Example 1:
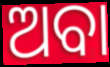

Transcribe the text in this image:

ଅବା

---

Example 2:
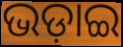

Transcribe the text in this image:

ଭଡ଼ାଇ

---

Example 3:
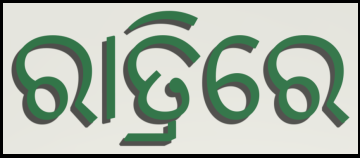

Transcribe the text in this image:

ରାତ୍ରିରେ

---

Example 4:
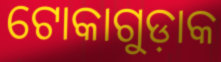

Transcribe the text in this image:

ଟୋକାଗୁଡ଼ାକ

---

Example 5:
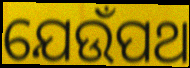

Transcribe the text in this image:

ଯେଉଁପଥ